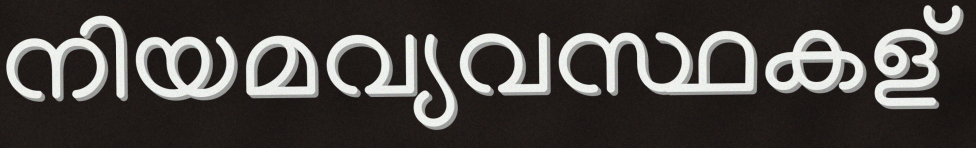
നിയമവ്യവസ്ഥകള്